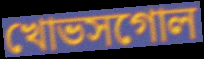
খোভসগোল